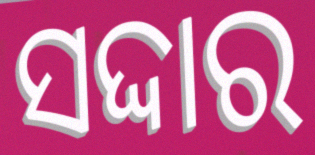
ସଦ୍ଦାର